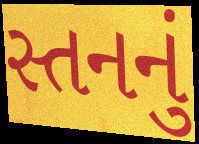
સ્તનનું